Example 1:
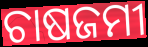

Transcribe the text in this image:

ଚାଷଜମୀ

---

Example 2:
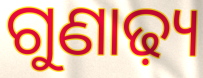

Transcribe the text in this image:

ଗୁଣାଢ଼୍ୟ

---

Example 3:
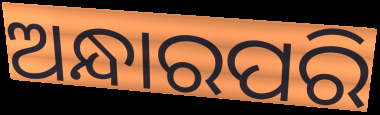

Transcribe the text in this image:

ଅନ୍ଧାରପରି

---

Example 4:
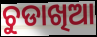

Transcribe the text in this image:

ଚୁଡାଖିଆ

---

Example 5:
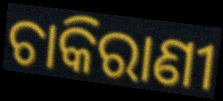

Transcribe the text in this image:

ଚାକିରାଣୀ